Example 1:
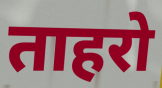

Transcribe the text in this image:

ताहरो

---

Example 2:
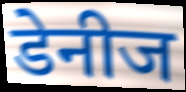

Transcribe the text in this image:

डेनीज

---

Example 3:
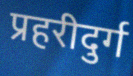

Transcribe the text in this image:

प्रहरीदुर्ग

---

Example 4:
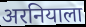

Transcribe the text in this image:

अरनियाला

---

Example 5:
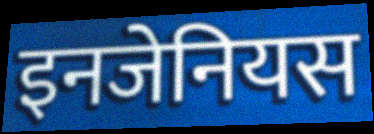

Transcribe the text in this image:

इनजेनियस